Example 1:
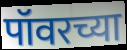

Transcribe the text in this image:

पॉवरच्या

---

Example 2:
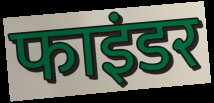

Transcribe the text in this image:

फाइंडर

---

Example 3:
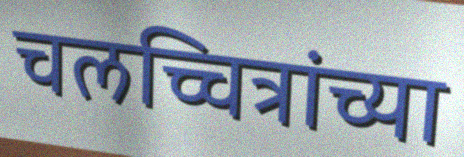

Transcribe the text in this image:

चलच्चित्रांच्या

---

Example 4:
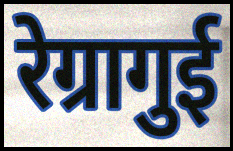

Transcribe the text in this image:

रेग्रागुई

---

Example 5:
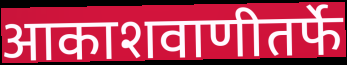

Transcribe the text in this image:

आकाशवाणीतर्फे